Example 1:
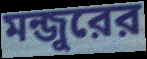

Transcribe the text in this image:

মন্জুরের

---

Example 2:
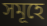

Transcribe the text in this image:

সমূহে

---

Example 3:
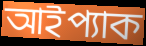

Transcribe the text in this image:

আইপ্যাক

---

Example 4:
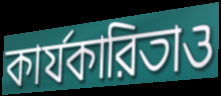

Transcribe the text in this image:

কার্যকারিতাও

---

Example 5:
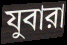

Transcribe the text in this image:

যুবারা